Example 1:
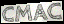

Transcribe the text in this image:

CMAC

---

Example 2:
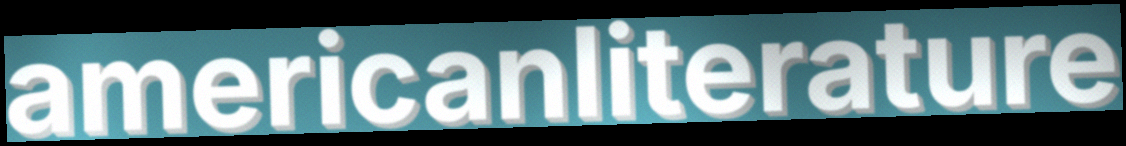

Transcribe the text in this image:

americanliterature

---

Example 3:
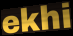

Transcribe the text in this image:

ekhi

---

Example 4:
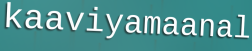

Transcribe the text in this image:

kaaviyamaanal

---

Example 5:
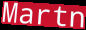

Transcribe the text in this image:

Martn